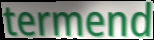
termend